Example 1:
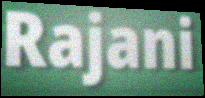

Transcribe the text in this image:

Rajani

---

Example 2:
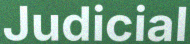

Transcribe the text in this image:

Judicial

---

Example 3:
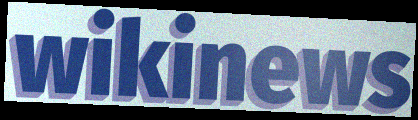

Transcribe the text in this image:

wikinews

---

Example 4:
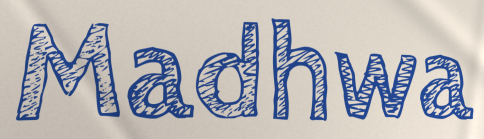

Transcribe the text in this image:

Madhwa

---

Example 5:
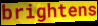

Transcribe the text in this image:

brightens